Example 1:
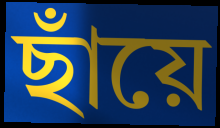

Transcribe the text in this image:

ছাঁয়ে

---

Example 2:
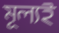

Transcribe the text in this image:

মূল্যই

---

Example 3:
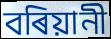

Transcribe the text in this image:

বৰিয়ানী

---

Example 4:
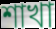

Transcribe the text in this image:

শাখা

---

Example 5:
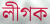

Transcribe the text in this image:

লীগক